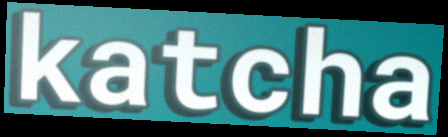
katcha